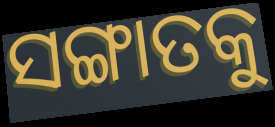
ସଙ୍ଗାତକୁ